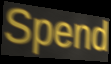
Spend